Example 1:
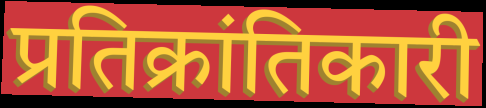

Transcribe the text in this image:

प्रतिक्रांतिकारी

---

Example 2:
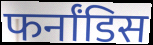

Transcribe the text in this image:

फर्नांडिस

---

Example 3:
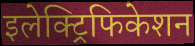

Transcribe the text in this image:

इलेक्ट्रिफिकेशन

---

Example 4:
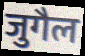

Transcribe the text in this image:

जुगैल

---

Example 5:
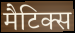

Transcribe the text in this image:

मैटिक्स